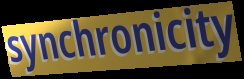
synchronicity